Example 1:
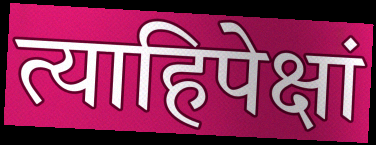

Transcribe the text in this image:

त्याहिपेक्षां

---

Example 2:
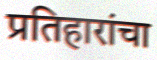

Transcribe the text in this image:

प्रतिहारांचा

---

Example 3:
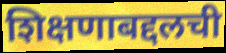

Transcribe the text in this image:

शिक्षणाबद्दलची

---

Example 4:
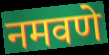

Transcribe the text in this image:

नमवणे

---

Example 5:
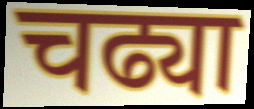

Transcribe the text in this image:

चढ्या